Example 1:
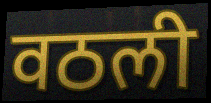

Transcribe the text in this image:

वठली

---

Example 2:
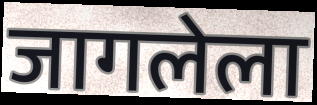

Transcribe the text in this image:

जागलेला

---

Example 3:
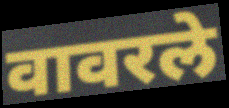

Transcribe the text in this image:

वावरले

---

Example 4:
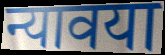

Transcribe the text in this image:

न्यावया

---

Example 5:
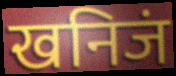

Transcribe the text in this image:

खनिजं